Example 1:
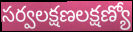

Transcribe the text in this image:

సర్వలక్షణలక్షణ్యో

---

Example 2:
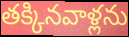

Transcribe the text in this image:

తక్కినవాళ్లను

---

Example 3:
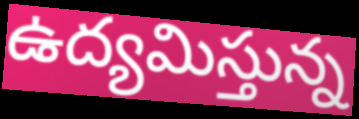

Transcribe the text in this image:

ఉద్యమిస్తున్న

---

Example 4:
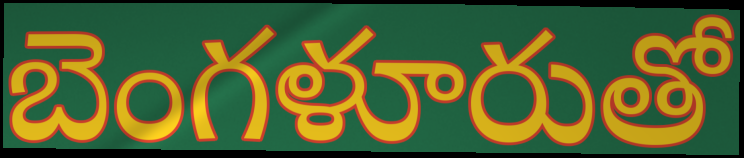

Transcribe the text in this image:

బెంగళూరుతో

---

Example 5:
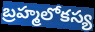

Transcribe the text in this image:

బ్రహ్మలోకస్య